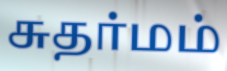
சுதர்மம்